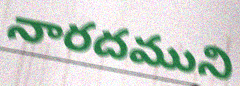
నారదముని